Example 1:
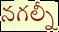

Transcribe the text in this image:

నగల్నీ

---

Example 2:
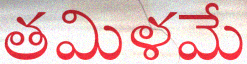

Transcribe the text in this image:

తమిళమే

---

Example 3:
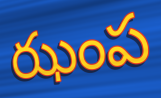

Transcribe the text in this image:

ఝంప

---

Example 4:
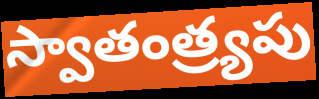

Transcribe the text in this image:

స్వాతంత్ర్యపు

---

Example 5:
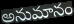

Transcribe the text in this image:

అనుమానం